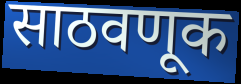
साठवणूक